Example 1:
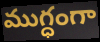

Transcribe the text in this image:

ముగ్ధంగా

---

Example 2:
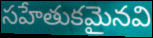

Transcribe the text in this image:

సహేతుకమైనవి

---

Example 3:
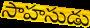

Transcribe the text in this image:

సాహసుడు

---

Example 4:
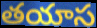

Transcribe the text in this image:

తయాస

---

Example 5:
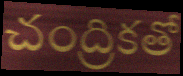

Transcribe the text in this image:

చంద్రికతో